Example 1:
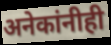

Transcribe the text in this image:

अनेकांनीही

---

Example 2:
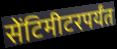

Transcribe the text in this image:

सेंटिमीटरपर्यंत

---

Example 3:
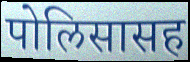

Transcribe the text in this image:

पोलिसासह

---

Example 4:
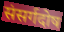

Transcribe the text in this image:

संसर्गदोष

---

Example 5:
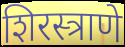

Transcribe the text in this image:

शिरस्त्राणे